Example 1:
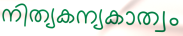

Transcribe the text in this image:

നിത്യകന്യകാത്വം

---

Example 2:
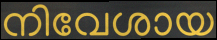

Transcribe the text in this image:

നിവേശായ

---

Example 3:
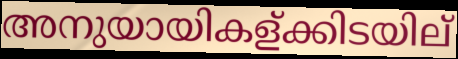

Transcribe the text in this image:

അനുയായികള്ക്കിടയില്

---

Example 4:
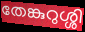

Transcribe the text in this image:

തേങ്കുറുശ്ശി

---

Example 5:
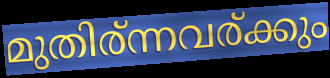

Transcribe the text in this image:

മുതിര്ന്നവര്ക്കും